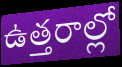
ఉత్తరాల్లో